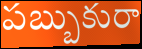
పబ్బుకురా